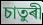
চাতুৰী